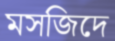
মসজিদে